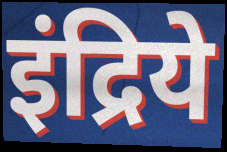
इंद्रिये